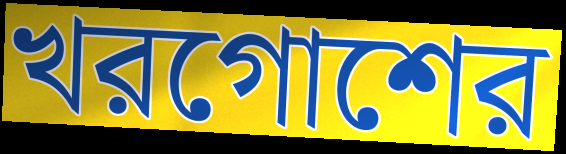
খরগোশের